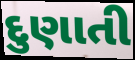
દુણાતી